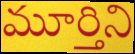
మూర్తిని